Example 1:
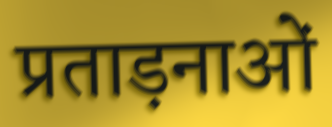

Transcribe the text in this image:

प्रताड़नाओं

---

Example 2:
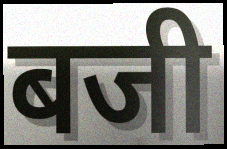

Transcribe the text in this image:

बजी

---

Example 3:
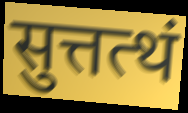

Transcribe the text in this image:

सुत्तत्थं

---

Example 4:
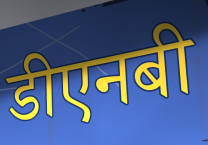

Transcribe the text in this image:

डीएनबी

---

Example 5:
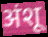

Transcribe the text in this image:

अंशू